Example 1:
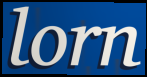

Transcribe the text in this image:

lorn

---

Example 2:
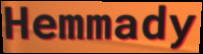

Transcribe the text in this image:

Hemmady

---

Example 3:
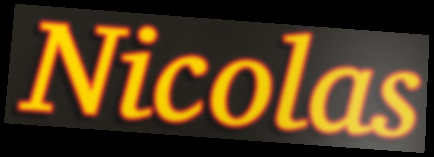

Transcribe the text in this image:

Nicolas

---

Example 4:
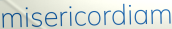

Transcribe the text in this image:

misericordiam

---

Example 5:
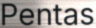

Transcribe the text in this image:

Pentas